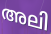
അലി